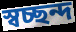
স্বচ্ছন্দ